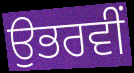
ਉਭਰਵੀਂ